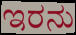
ಇರನು